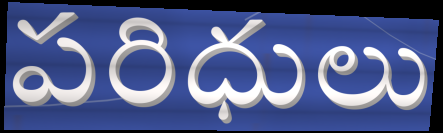
పరిధులు